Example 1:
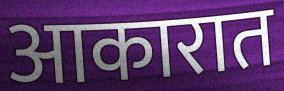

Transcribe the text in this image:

आकारात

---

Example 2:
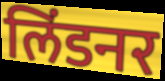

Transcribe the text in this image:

लिंडनर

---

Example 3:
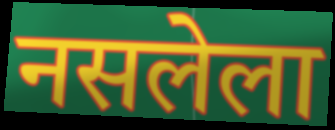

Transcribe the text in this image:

नसलेला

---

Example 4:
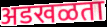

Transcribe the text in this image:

अडखळता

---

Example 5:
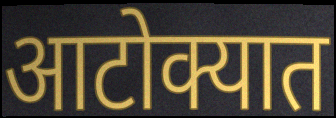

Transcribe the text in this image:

आटोक्यात